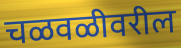
चळवळीवरील